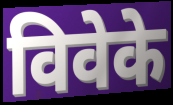
विवेके